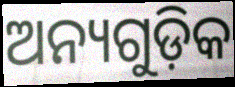
ଅନ୍ୟଗୁଡ଼ିକ